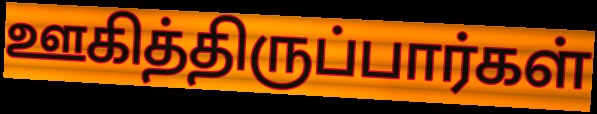
ஊகித்திருப்பார்கள்